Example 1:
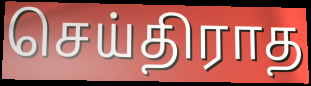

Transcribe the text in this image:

செய்திராத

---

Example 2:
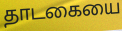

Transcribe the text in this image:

தாடகையை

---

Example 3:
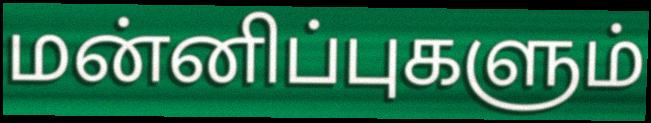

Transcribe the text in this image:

மன்னிப்புகளும்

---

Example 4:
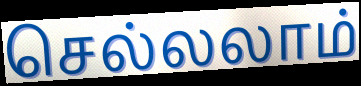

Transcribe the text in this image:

செல்லலாம்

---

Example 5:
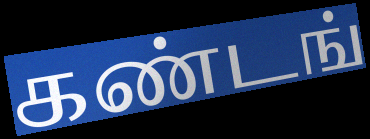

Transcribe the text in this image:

கண்டங்